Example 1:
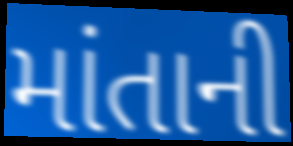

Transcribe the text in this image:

માંતાની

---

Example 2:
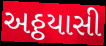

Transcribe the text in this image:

અઠ્ઠયાસી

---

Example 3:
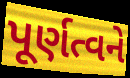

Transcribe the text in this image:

પૂર્ણત્વને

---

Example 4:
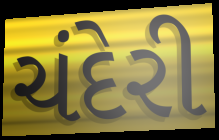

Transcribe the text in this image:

ચંદેરી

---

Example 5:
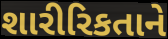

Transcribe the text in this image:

શારીરિકતાને